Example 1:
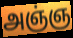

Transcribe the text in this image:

அஞ்ஞ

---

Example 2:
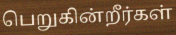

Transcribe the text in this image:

பெறுகின்றீர்கள்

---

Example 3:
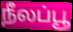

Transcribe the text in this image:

நீலப்பூ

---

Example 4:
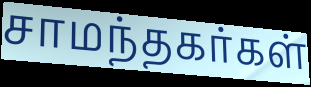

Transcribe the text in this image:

சாமந்தகர்கள்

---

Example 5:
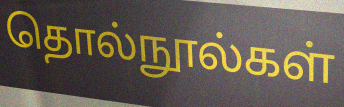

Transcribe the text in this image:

தொல்நூல்கள்